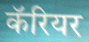
कॅरियर